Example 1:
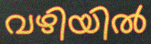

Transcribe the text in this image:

വഴിയിൽ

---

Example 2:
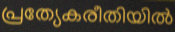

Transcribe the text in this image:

പ്രത്യേകരീതിയിൽ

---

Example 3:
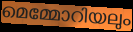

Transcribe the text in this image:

മെമ്മോറിയലും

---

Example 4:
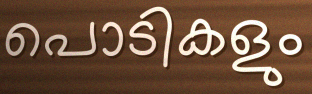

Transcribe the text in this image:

പൊടികളും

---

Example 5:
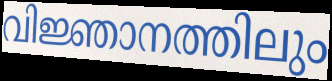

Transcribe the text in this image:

വിജ്ഞാനത്തിലും